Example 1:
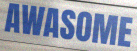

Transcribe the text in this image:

AWASOME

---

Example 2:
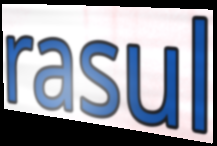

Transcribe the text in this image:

rasul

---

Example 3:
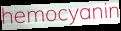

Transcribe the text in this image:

hemocyanin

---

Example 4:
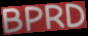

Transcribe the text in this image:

BPRD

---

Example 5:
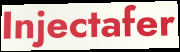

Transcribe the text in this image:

Injectafer